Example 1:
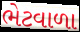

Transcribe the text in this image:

ભેટવાળા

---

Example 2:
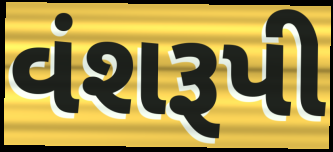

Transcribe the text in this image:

વંશરૂપી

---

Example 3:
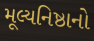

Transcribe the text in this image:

મૂલ્યનિષ્ઠાનો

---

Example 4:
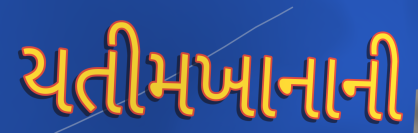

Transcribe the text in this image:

યતીમખાનાની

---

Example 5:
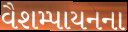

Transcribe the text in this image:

વૈશમ્પાયનના